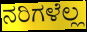
ನರಿಗಳೆಲ್ಲ